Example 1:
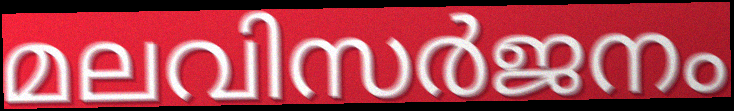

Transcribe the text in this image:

മലവിസർജനം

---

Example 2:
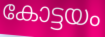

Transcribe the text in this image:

കോട്ടയം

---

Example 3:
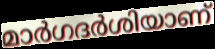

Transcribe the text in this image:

മാർഗദർശിയാണ്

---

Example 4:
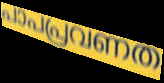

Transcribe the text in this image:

പാപപ്രവണത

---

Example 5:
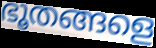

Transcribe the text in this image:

ഭൂതങ്ങളെ